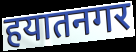
हयातनगर